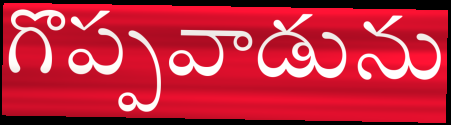
గొప్పవాడును